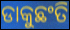
ଡାକୁଛଂତି